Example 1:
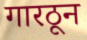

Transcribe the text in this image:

गारठून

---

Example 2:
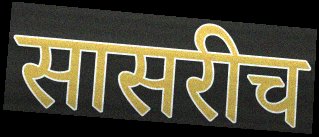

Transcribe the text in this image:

सासरीच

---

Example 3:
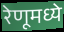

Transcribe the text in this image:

रेणूमध्ये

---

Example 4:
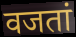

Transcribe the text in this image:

वजतां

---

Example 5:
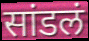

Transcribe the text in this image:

सांडलं